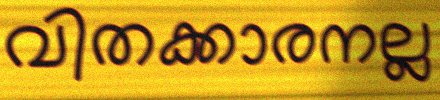
വിതക്കാരനല്ല